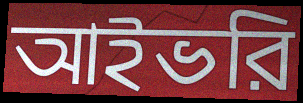
আইভরি